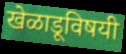
खेळाडूविषयी